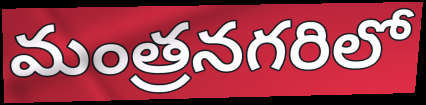
మంత్రనగరిలో